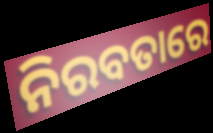
ନିରବତାରେ